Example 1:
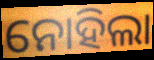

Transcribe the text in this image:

ନୋହିଲା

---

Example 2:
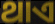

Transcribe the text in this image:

ଥାଏ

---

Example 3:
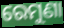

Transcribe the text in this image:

ରେମୁଣା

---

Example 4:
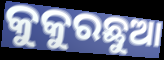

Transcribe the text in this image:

କୁକୁରଛୁଆ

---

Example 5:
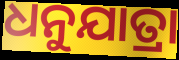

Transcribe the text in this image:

ଧନୁଯାତ୍ରା